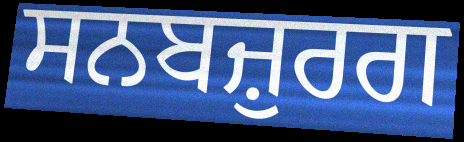
ਸਨਬਜ਼ੁਰਗ